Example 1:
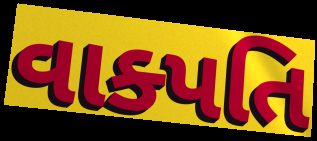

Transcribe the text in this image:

વાક્પતિ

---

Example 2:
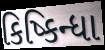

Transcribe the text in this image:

કિષ્કિન્ધા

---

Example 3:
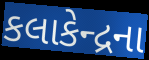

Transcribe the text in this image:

કલાકેન્દ્રના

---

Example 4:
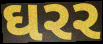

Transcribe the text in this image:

ઘરર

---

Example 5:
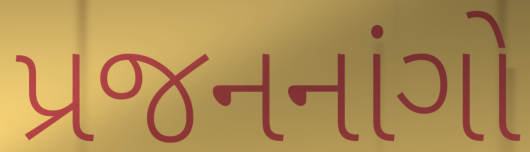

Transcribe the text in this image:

પ્રજનનાંગો